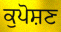
ਕੁਪੋਸ਼ਣ